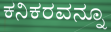
ಕನಿಕರವನ್ನೂ